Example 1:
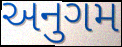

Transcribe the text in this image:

અનુગમ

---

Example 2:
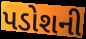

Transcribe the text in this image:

પડોશની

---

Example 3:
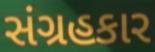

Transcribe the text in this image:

સંગ્રહકાર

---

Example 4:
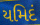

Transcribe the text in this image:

યમિદં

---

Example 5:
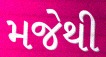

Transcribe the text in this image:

મજેથી